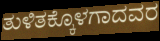
ತುಳಿತಕ್ಕೊಳಗಾದವರ